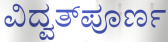
ವಿದ್ವತ್‌ಪೂರ್ಣ